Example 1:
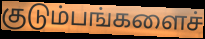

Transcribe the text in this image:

குடும்பங்களைச்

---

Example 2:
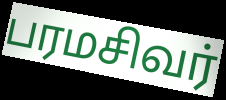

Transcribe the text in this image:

பரமசிவர்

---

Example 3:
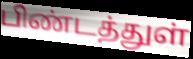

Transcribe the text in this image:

பிண்டத்துள்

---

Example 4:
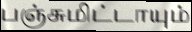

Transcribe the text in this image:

பஞ்சுமிட்டாயும்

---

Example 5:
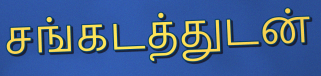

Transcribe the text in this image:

சங்கடத்துடன்